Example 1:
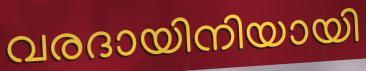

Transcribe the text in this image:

വരദായിനിയായി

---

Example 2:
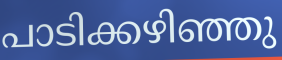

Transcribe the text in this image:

പാടിക്കഴിഞ്ഞു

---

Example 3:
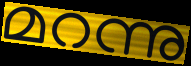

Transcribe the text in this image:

മറന്നു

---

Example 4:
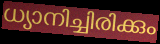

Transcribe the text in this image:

ധ്യാനിച്ചിരിക്കും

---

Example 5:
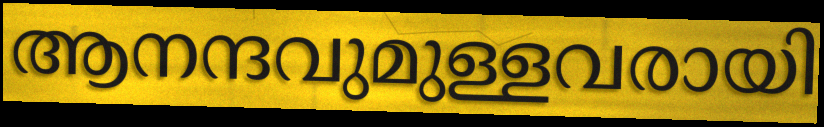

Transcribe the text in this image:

ആനന്ദവുമുള്ളവരായി